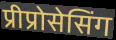
प्रीप्रोसेसिंग